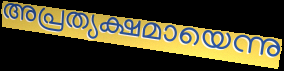
അപ്രത്യക്ഷമായെന്നു